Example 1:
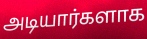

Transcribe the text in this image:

அடியார்களாக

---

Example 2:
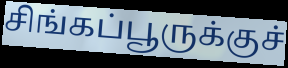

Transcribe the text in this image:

சிங்கப்பூருக்குச்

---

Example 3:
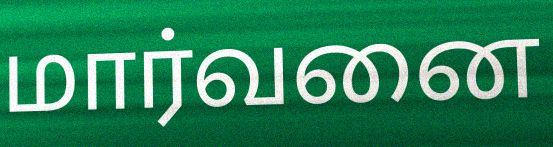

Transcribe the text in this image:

மார்வனை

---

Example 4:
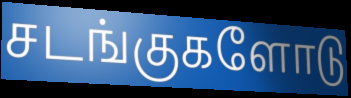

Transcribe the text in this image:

சடங்குகளோடு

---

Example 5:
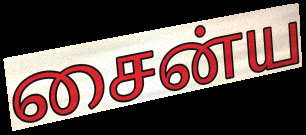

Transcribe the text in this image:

சைன்ய